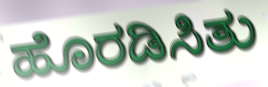
ಹೊರಡಿಸಿತು